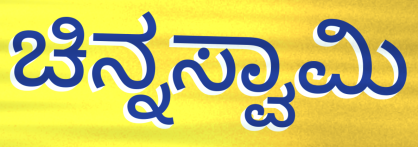
ಚಿನ್ನಸ್ವಾಮಿ